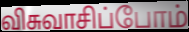
விசுவாசிப்போம்